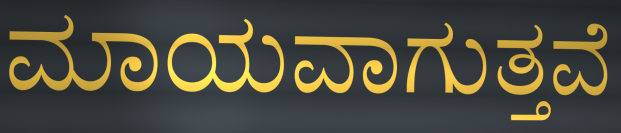
ಮಾಯವಾಗುತ್ತವೆ